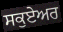
ਸਕੁਏਅਰ